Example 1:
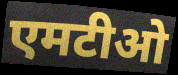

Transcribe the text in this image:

एमटीओ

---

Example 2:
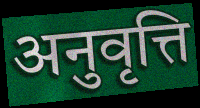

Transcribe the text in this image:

अनुवृत्ति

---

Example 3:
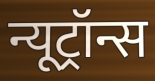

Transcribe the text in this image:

न्यूट्रॉन्स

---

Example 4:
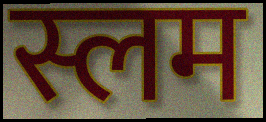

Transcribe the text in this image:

स्लम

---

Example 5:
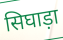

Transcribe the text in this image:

सिघाड़ा